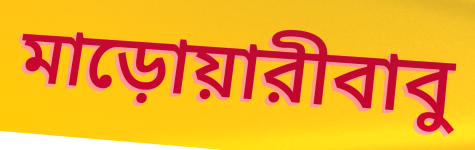
মাড়োয়ারীবাবু